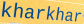
kharkhar